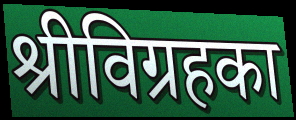
श्रीविग्रहका